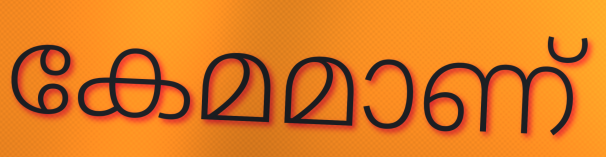
കേമമാണ്